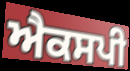
ਐਕਸਪੀ